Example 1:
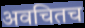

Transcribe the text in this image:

अवचितच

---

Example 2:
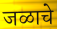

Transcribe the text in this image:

जळाचे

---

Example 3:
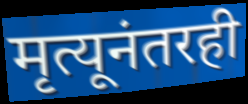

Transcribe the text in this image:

मृत्यूनंतरही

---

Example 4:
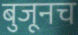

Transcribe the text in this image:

बुजूनच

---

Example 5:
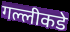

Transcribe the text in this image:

गल्लीकडे